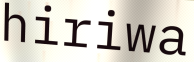
hiriwa